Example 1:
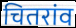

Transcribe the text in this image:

चितरांव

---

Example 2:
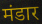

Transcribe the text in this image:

मंडार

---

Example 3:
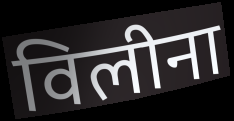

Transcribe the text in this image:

विलीना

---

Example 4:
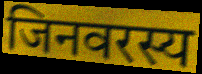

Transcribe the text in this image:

जिनवरस्य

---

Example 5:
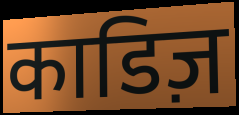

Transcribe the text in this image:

काडिज़